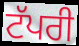
ਟੱਪਰੀ